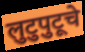
लुटुपुटूचे